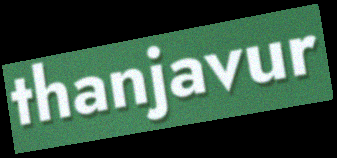
thanjavur